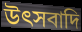
উৎসবাদি